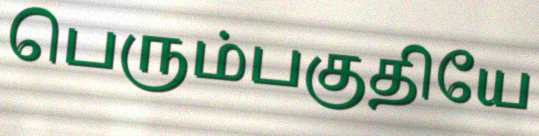
பெரும்பகுதியே